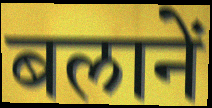
बलानें